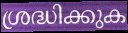
ശ്രദ്ധിക്കുക